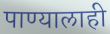
पाण्यालाही